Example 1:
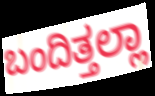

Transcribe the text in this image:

ಬಂದಿತ್ತಲ್ಲಾ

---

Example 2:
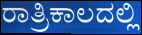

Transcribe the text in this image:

ರಾತ್ರಿಕಾಲದಲ್ಲಿ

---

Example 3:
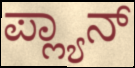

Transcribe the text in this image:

ಪ್ಲ್ಯಾನ್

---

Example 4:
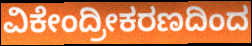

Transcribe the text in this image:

ವಿಕೇಂದ್ರೀಕರಣದಿಂದ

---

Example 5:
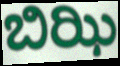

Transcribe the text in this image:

ಬಿಝಿ